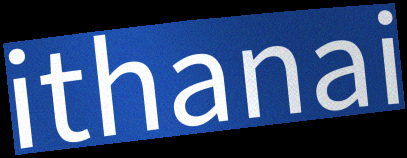
ithanai